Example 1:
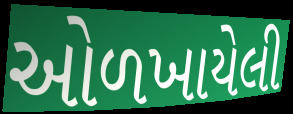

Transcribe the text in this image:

ઓળખાયેલી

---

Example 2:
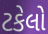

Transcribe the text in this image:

ટકેલો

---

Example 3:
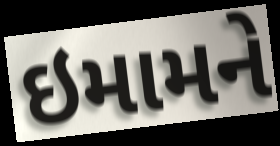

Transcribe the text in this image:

ઇમામને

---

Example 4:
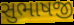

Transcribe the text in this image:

સુભાષજી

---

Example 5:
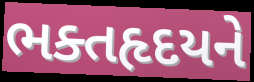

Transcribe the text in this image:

ભક્તહૃદયને